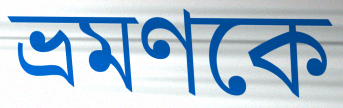
ভ্রমণকে